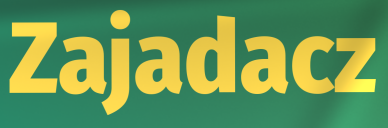
Zajadacz